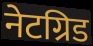
नेटग्रिड